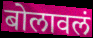
बोलावलं